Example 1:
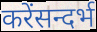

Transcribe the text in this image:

करेंसन्दर्भ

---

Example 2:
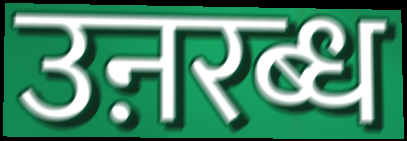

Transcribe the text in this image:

उऩरब्ध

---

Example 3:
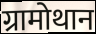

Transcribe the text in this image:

ग्रामोथान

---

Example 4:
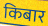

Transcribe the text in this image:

किबार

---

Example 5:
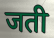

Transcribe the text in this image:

जती